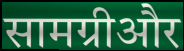
सामग्रीऔर